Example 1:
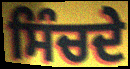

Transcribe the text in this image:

ਸਿੰਚਦੇ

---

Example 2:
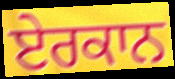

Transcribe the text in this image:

ਏਰਕਾਨ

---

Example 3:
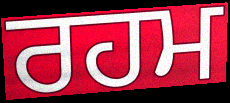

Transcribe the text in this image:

ਰਹਮ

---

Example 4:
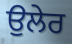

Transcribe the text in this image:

ਉਲੇਰ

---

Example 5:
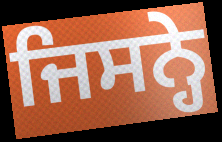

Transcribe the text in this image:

ਜਿਸਨ੍ਹੇ